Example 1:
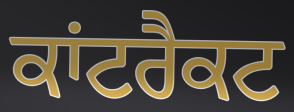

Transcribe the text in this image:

ਕਾਂਟਰੈਕਟ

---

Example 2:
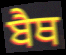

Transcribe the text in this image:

ਬੈਥ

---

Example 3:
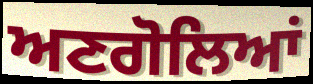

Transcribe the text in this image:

ਅਣਗੋਲਿਆਂ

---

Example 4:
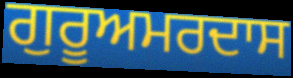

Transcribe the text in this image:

ਗੁਰੂਅਮਰਦਾਸ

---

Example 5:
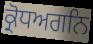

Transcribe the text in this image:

ਕ੍ਰੋਧਅਗਨਿ